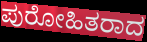
ಪುರೋಹಿತರಾದ